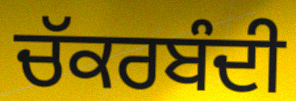
ਚੱਕਰਬੰਦੀ